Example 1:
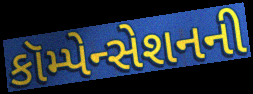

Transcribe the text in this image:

કૉમ્પેન્સેશનની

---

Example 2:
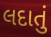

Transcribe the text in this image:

લદાતું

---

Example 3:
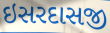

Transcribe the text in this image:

ઇસરદાસજી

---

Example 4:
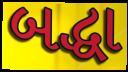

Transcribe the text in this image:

બદ્ધા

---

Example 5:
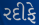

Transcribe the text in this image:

રદીફે